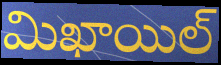
మిఖాయిల్